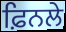
ਫ਼ਿਨਲੇ